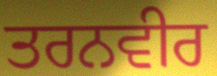
ਤਰਨਵੀਰ